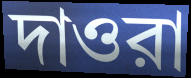
দাওরা